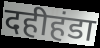
दहीहंडा